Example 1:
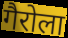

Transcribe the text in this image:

गैरोला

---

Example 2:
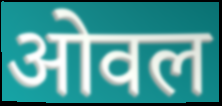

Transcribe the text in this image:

ओवल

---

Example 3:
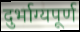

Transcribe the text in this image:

दुर्भाग्यपूर्ण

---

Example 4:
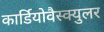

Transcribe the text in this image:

कार्डियोवैस्क्युलर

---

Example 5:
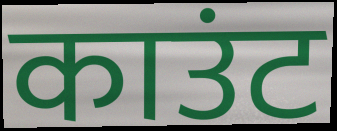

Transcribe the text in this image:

काउंट